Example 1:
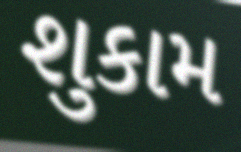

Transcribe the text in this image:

શુકામ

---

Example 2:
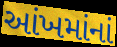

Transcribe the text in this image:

આંખમાંનાં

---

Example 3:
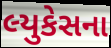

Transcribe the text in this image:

લ્યુકેસના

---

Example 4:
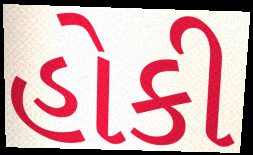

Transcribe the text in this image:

હોકી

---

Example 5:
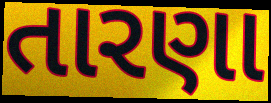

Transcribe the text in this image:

તારણા